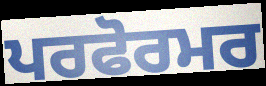
ਪਰਫੋਰਮਰ